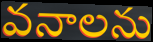
వనాలను